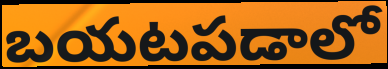
బయటపడాలో